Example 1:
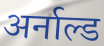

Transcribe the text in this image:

अर्नाल्ड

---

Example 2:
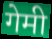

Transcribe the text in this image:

गेमी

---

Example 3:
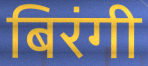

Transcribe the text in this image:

बिरंगी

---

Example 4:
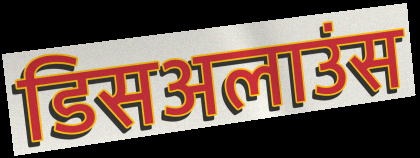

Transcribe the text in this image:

डिसअलाउंस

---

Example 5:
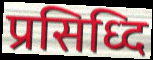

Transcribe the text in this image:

प्रसिध्दि